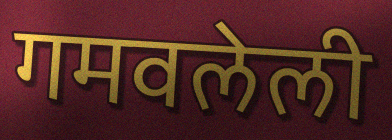
गमवलेली